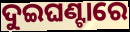
ଦୁଇଘଣ୍ଟାରେ